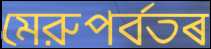
মেৰুপৰ্বতৰ